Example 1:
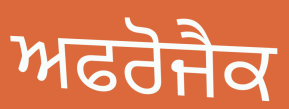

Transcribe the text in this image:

ਅਫਰੋਜੈਕ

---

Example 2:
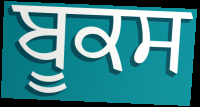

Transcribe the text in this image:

ਬੂਕਸ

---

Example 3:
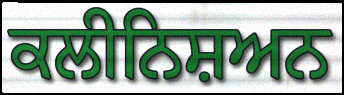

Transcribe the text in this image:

ਕਲੀਨਿਸ਼ਅਨ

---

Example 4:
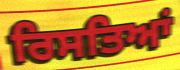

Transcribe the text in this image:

ਰਿਸਤਿਆਂ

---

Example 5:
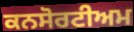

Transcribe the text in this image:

ਕਨਸੋਰਟੀਅਮ